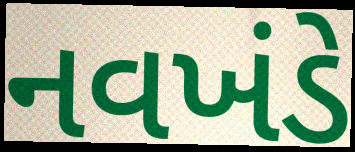
નવખંડે